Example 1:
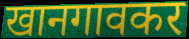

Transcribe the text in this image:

खानगावकर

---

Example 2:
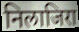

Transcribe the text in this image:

निलाजिरा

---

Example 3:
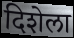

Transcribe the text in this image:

दिशेला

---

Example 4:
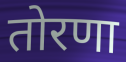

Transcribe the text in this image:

तोरणा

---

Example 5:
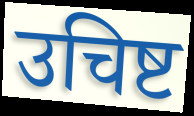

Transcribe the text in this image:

उचिष्ट